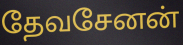
தேவசேனன்